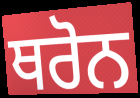
ਥਰੋਨ